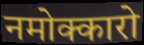
नमोक्कारो